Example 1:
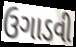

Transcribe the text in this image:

ઉગાડવી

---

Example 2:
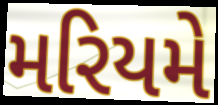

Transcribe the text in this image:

મરિયમે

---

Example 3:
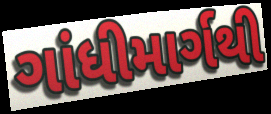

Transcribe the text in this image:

ગાંધીમાર્ગથી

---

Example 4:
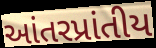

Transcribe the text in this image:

આંતરપ્રાંતીય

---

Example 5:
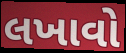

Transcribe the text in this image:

લખાવો